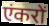
एंकरों